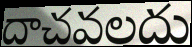
దాచవలదు